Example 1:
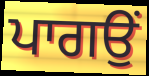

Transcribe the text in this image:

ਪਾਗਉਂ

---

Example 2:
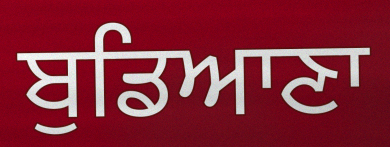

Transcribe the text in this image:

ਬੁਡਿਆਣਾ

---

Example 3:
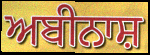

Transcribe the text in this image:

ਅਬੀਨਾਸ਼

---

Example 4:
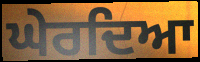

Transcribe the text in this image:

ਘੇਰਦਿਆ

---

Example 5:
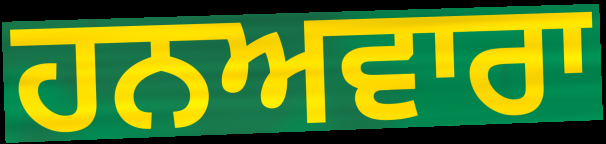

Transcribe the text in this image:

ਹਨਅਵਾਰਾ